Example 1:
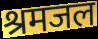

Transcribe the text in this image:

श्रमजल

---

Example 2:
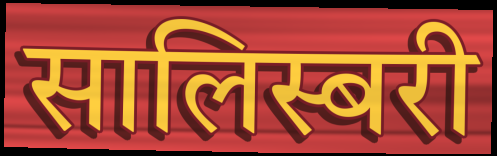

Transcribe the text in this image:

सालिस्बरी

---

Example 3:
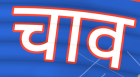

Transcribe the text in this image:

चाव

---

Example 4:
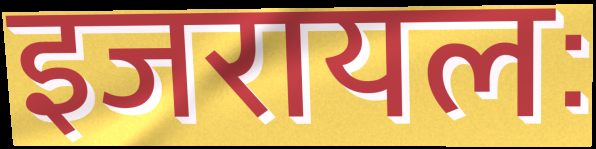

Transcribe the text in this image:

इजरायलः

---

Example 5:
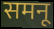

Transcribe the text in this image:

समनू